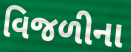
વિજળીના